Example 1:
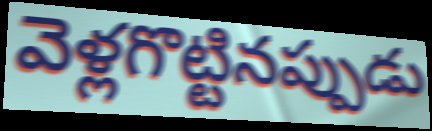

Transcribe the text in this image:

వెళ్లగొట్టినప్పుడు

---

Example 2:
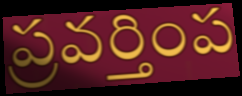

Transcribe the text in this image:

ప్రవర్తింప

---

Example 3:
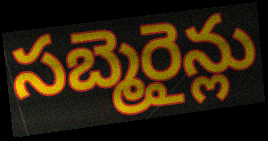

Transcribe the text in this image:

సబ్మెరైన్లు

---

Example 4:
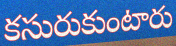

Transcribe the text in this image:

కసురుకుంటారు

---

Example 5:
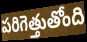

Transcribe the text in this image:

పరిగెత్తుతోంది